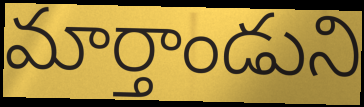
మార్తాండుని